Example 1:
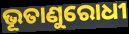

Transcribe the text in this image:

ଭୂତାଣୁରୋଧୀ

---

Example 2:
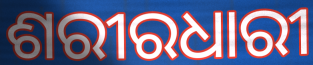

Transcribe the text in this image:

ଶରୀରଧାରୀ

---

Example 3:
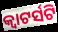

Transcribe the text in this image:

କ୍ୱାଟର୍ସଟି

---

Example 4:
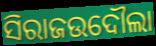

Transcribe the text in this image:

ସିରାଜଉଦୌଲା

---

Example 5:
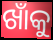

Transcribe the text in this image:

ଖାଁକୁ